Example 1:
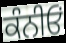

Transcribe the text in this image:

ਕੰਨੀਓਂ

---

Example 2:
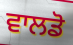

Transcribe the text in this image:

ਵਾਲਡੋ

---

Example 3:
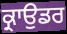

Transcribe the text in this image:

ਕ੍ਰਾਉਡਰ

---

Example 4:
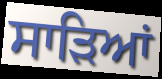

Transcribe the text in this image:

ਸਾੜਿਆਂ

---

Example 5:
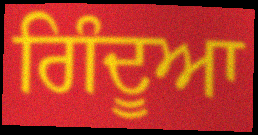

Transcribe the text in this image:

ਗਿੰਦੂਆ